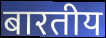
बारतीय